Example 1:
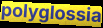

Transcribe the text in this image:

polyglossia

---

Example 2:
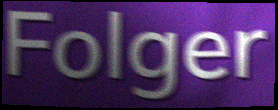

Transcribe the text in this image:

Folger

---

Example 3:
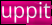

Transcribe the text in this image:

uppit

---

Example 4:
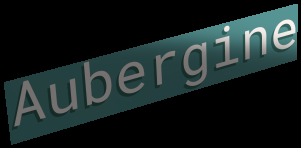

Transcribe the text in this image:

Aubergine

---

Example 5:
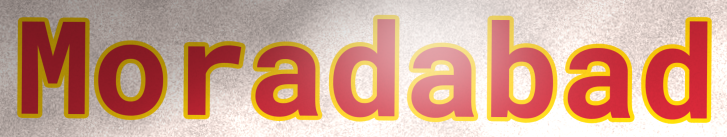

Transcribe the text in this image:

Moradabad